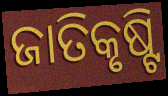
ଜାତିକୃଷ୍ଟି